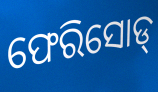
ଫେରିସୋଡ୍